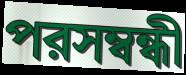
পরসম্বন্ধী